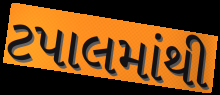
ટપાલમાંથી